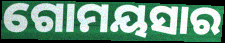
ଗୋମୟସାର